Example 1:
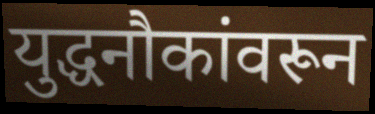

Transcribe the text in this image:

युद्धनौकांवरून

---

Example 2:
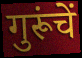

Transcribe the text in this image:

गुरूंचें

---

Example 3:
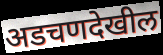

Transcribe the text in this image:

अडचणदेखील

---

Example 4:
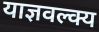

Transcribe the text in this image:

याज्ञवल्क्य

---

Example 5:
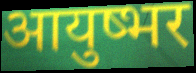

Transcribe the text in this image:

आयुष्भर